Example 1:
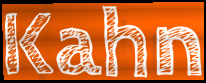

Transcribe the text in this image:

Kahn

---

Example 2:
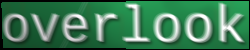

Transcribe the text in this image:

overlook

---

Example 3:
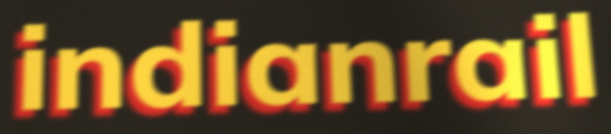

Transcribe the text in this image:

indianrail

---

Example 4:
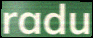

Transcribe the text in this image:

radu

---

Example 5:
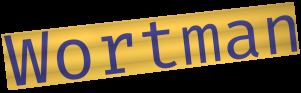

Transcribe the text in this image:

Wortman